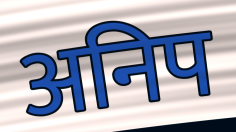
अनिप